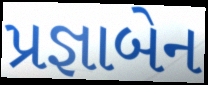
પ્રજ્ઞાબેન